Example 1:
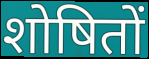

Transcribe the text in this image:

शोषितों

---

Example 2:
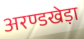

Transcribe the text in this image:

अरण्डखेड़ा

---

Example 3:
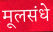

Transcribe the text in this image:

मूलसंधे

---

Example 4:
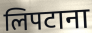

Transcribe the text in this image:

लिपटाना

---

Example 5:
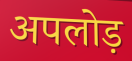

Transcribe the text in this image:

अपलोड़